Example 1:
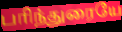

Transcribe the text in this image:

பரிந்துரையே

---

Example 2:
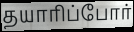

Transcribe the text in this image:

தயாரிப்போர்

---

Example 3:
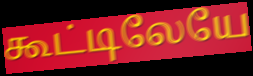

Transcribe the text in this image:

கூட்டிலேயே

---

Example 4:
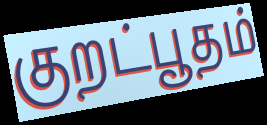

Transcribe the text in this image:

குறட்பூதம்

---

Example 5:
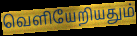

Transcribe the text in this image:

வெளியேறியதும்